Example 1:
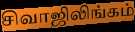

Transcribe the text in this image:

சிவாஜிலிங்கம்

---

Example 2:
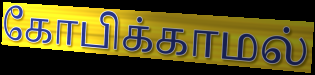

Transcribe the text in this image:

கோபிக்காமல்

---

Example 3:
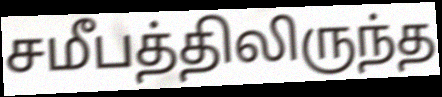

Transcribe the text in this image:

சமீபத்திலிருந்த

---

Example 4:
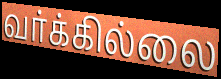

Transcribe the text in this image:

வர்க்கில்லை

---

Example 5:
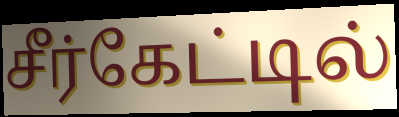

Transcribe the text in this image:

சீர்கேட்டில்